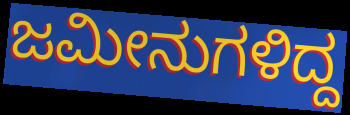
ಜಮೀನುಗಳಿದ್ದ